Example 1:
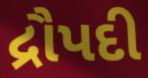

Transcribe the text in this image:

દ્રૌપદી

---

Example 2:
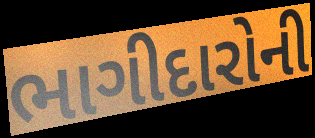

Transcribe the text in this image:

ભાગીદારોની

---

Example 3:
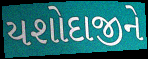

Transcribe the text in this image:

યશોદાજીને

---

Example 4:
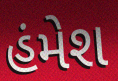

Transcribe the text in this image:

હંમેશ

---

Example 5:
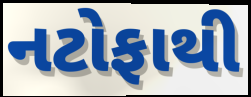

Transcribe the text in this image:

નટોફાથી